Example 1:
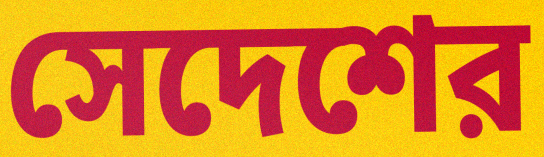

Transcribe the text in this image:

সেদেশের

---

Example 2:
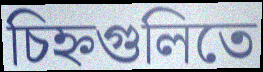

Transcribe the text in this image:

চিহ্নগুলিতে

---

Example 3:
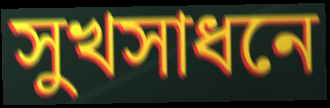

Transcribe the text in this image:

সুখসাধনে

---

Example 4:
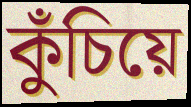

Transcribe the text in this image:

কুঁচিয়ে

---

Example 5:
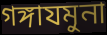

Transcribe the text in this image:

গঙ্গাযমুনা